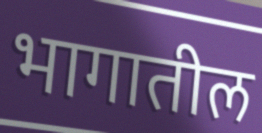
भागातील